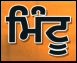
ਮਿੰਟੂ